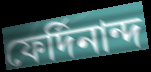
ফের্দিনান্দ